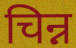
चिन्न